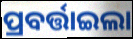
ପ୍ରବର୍ତ୍ତାଇଲା